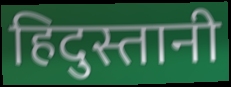
हिदुस्तानी